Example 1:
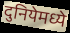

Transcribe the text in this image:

दुनियेमध्ये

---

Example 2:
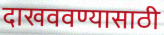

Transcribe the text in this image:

दाखववण्यासाठी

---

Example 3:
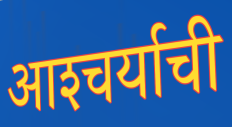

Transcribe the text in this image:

आश्‍चर्याची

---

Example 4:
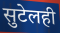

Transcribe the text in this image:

सुटेलही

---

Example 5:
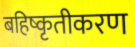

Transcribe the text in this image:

बहिष्कृतीकरण